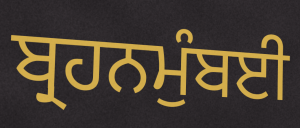
ਬ੍ਰਹਨਮੁੰਬਈ